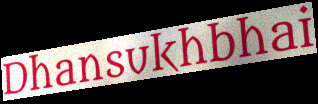
Dhansukhbhai